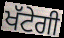
ਖੱਟੇਗੀ